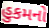
હુકમનો